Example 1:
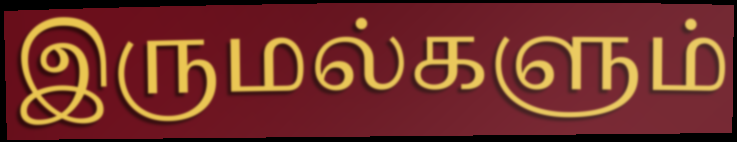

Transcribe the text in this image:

இருமல்களும்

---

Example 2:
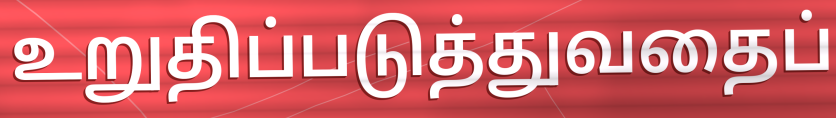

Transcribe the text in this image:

உறுதிப்படுத்துவதைப்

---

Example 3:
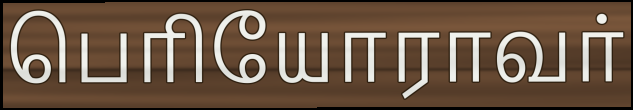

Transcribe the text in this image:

பெரியோராவர்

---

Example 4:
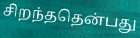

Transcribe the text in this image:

சிறந்ததென்பது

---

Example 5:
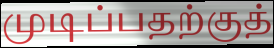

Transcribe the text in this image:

முடிப்பதற்குத்